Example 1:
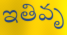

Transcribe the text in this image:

ఇతివృ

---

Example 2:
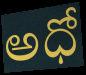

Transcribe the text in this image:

అధో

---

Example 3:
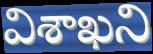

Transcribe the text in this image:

విశాఖని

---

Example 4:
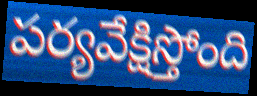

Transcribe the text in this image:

పర్యవేక్షిస్తోంది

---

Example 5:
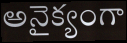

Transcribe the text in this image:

అనైక్యంగా